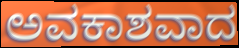
ಅವಕಾಶವಾದ